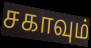
சகாவும்